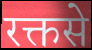
रक्तसे